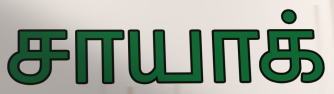
சாயாக்